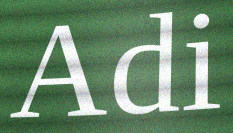
Adi